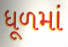
ધૂળમાં